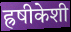
ह्रषीकेशी